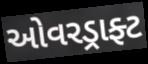
ઓવરડ્રાફ્ટ